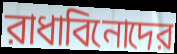
রাধাবিনোদের